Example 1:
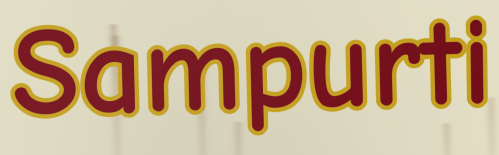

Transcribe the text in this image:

Sampurti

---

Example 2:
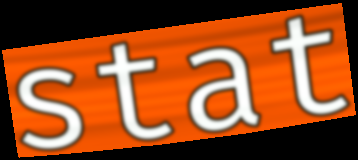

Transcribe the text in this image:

stat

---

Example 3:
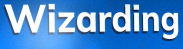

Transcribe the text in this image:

Wizarding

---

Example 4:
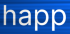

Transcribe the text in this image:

happ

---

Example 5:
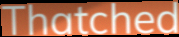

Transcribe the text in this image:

Thatched